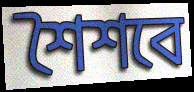
শৈশবে